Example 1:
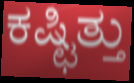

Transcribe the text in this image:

ಕಷ್ಟಿತ್ತು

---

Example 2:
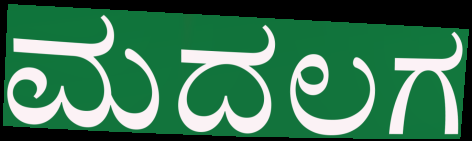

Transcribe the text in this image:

ಮದಲಗ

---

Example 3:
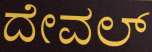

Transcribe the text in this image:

ದೇವಲ್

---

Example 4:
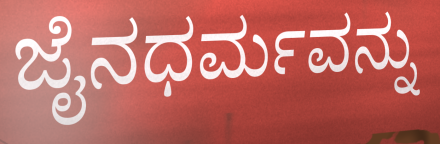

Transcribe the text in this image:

ಜೈನಧರ್ಮವನ್ನು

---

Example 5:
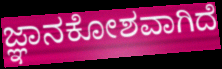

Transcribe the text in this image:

ಜ್ಞಾನಕೋಶವಾಗಿದೆ